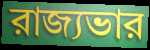
রাজ্যভার